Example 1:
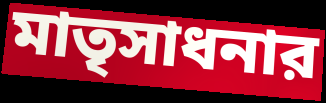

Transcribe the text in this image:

মাতৃসাধনার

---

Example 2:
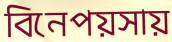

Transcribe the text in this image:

বিনেপয়সায়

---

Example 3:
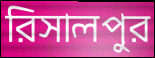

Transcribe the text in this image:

রিসালপুর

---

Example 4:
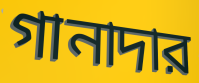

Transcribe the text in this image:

গানাদার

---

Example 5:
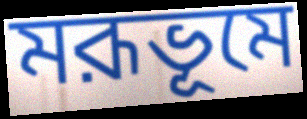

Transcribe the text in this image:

মরূভূমে